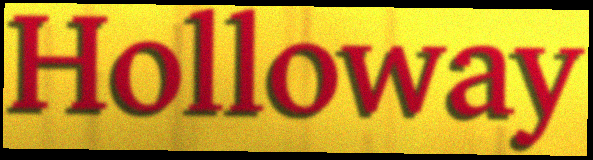
Holloway